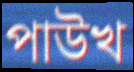
পাউখ